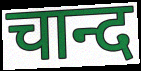
चान्द